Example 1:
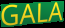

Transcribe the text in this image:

GALA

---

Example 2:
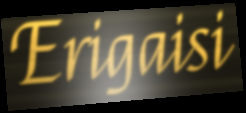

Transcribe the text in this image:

Erigaisi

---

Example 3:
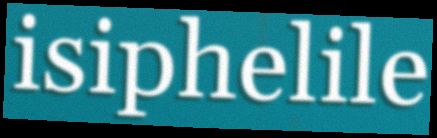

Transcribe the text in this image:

isiphelile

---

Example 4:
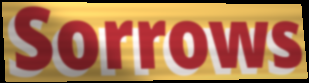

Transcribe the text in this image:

Sorrows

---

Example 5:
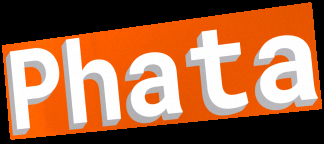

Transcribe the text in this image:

Phata